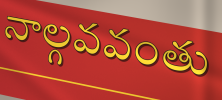
నాల్గవవంతు